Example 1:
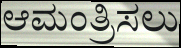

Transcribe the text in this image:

ಆಮಂತ್ರಿಸಲು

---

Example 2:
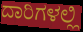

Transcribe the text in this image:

ದಾರಿಗಳಲ್ಲಿ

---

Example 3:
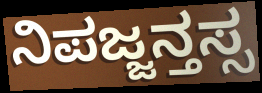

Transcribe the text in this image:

ನಿಪಜ್ಜನ್ತಸ್ಸ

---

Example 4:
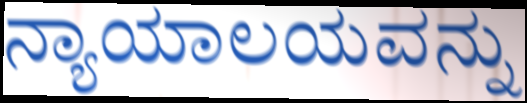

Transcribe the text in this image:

ನ್ಯಾಯಾಲಯವನ್ನು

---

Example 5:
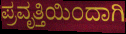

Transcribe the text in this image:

ಪ್ರವೃತ್ತಿಯಿಂದಾಗಿ